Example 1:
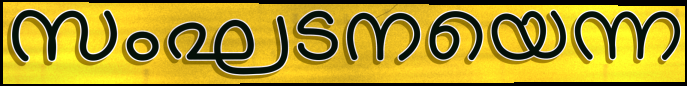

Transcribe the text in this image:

സംഘടനയെന്ന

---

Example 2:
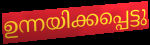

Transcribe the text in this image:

ഉന്നയിക്കപ്പെട്ടു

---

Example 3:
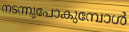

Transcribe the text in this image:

നടന്നുപോകുമ്പോൾ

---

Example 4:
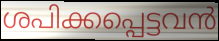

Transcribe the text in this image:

ശപിക്കപ്പെട്ടവൻ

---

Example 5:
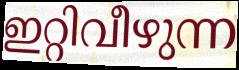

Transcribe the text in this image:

ഇറ്റിവീഴുന്ന